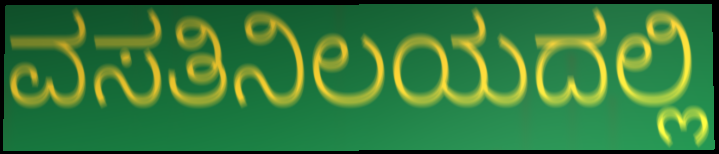
ವಸತಿನಿಲಯದಲ್ಲಿ